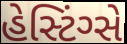
હેસ્ટિંગ્સે